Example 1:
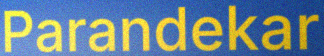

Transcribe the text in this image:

Parandekar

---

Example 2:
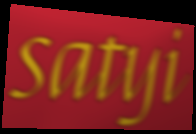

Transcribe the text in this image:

satyi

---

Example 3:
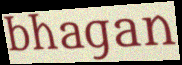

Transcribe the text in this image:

bhagan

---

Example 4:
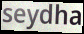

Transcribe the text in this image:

seydha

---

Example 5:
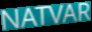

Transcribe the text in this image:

NATVAR